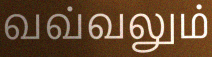
வவ்வலும்